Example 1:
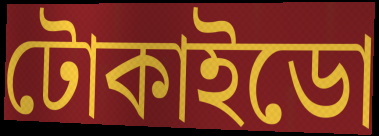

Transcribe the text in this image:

টোকাইডো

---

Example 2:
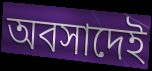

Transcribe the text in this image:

অবসাদেই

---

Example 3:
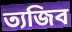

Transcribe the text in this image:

ত্যজিব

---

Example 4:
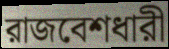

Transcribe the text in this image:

রাজবেশধারী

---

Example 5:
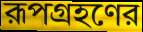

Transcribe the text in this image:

রূপগ্রহণের